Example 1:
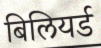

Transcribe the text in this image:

बिलियर्ड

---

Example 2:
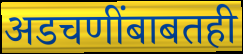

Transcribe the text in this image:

अडचणींबाबतही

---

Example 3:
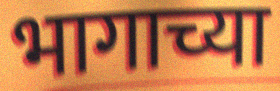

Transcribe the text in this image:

भागाच्या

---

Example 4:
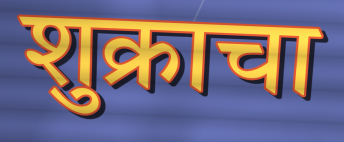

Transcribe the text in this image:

शुक्राचा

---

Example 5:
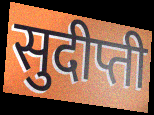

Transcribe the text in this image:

सुदीप्ती